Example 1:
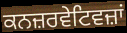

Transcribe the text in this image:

ਕਨਜ਼ਰਵੇਟਿਵਜ਼ਾਂ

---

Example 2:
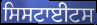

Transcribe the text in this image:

ਸਿਸਟਾਈਟਸ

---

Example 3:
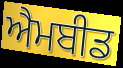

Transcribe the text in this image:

ਐਮਬੀਡ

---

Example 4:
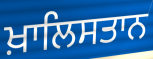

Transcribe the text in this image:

ਖ਼ਾਲਿਸਤਾਨ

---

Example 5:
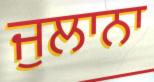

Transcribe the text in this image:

ਜੁਲਾਨਾ